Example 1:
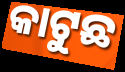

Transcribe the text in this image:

କାଟୁଛ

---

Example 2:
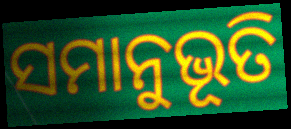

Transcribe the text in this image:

ସମାନୁଭୂତି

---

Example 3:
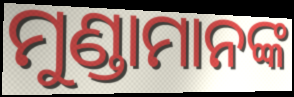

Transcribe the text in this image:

ମୁଣ୍ଡାମାନଙ୍କ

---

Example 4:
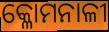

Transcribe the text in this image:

କ୍ଳୋମନାଳୀ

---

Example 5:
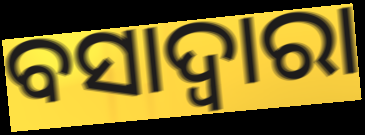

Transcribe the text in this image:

ବସାଦ୍ୱାରା